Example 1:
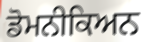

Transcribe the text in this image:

ਡੋਮਨੀਕਿਅਨ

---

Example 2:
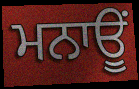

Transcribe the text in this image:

ਮਨਾਊਂ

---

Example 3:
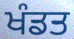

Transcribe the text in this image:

ਖੰਡਤ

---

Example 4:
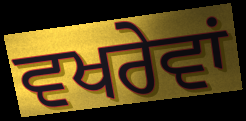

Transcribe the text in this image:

ਵਖਰੇਵਾਂ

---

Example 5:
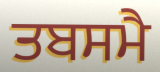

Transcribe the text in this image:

ਤਬਸਮੈ